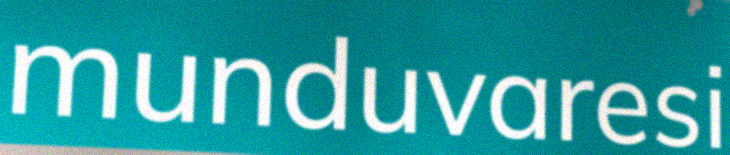
munduvaresi